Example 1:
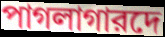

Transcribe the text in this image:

পাগলাগারদে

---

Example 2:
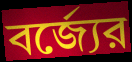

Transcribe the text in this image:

বর্জ্যের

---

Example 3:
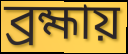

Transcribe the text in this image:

ব্রহ্মায়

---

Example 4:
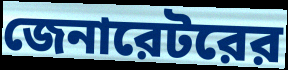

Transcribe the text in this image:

জেনারেটরের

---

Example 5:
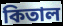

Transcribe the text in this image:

কিতাল